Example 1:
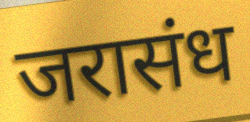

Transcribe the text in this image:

जरासंध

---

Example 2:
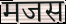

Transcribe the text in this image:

मजस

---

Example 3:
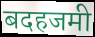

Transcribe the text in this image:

बदहजमी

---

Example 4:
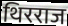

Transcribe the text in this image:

थिरराज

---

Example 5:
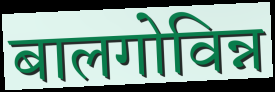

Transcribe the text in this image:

बालगोविन्न